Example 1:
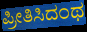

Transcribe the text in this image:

ಪ್ರೀತಿಸಿದಂಥ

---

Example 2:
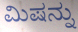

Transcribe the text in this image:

ಮಿಷನ್ನು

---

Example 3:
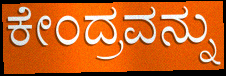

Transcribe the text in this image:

ಕೇಂದ್ರವನ್ನು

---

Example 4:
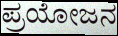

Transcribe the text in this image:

ಪ್ರಯೋಜನ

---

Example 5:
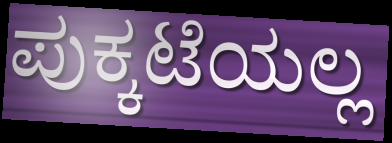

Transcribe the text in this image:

ಪುಕ್ಕಟೆಯಲ್ಲ